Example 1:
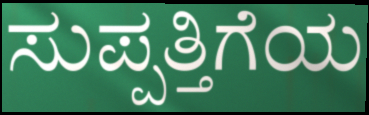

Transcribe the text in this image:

ಸುಪ್ಪತ್ತಿಗೆಯ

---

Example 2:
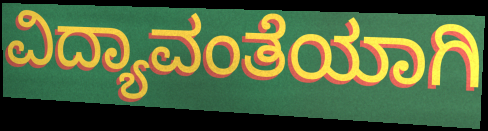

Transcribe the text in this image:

ವಿದ್ಯಾವಂತೆಯಾಗಿ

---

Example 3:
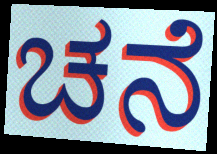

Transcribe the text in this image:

ಚನೆ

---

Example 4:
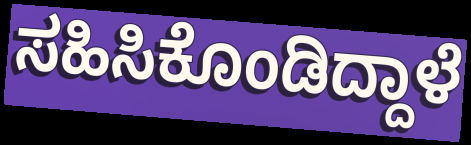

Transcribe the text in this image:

ಸಹಿಸಿಕೊಂಡಿದ್ದಾಳೆ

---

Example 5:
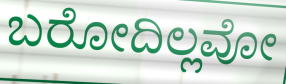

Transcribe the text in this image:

ಬರೋದಿಲ್ಲವೋ